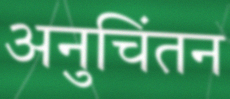
अनुचिंतन